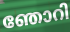
ഞോറി